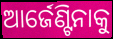
ଆର୍ଜେଣ୍ଟିନାକୁ